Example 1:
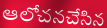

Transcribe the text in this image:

ఆలోచనచేసిన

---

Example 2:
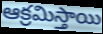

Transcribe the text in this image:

ఆక్రమిస్తాయి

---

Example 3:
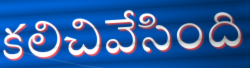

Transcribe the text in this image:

కలిచివేసింది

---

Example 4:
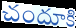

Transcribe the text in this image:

చందూకి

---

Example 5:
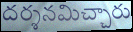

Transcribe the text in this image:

దర్శనమిచ్చారు